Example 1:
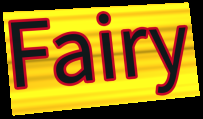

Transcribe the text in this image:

Fairy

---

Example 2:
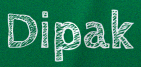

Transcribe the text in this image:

Dipak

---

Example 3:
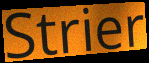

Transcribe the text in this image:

Strier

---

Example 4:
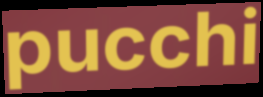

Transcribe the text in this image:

pucchi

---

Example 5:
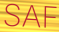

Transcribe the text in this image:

SAF